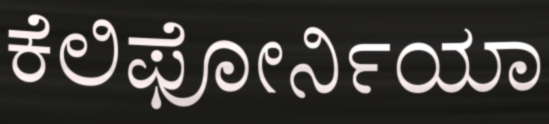
ಕೆಲಿಫೋರ್ನಿಯಾ